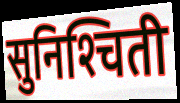
सुनिश्चिती